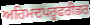
ਅਹਿਮਦਪਰੂਫਰੀਡਰ